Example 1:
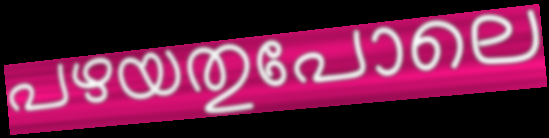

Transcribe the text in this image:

പഴയതുപോലെ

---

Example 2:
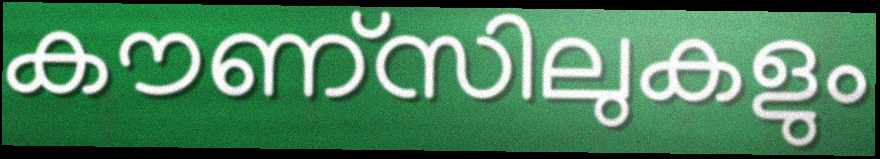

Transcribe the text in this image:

കൗണ്സിലുകളും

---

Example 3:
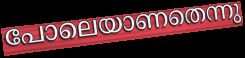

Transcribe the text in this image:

പോലെയാണതെന്നു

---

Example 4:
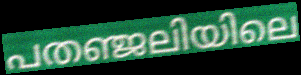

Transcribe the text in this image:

പതഞ്ജലിയിലെ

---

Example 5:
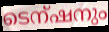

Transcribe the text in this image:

ടെന്ഷനും